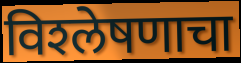
विश्‍लेषणाचा